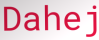
Dahej